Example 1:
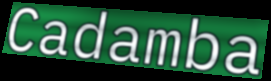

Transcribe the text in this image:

Cadamba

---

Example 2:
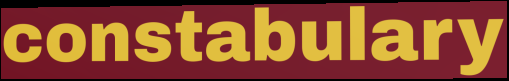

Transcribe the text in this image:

constabulary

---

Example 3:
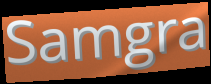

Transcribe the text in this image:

Samgra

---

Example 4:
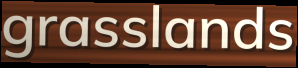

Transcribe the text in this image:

grasslands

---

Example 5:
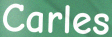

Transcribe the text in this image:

Carles